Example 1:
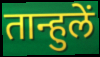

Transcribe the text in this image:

तान्हुलें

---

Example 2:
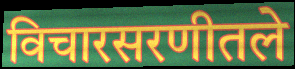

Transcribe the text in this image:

विचारसरणीतले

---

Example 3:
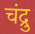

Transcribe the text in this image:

चंद्रु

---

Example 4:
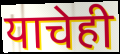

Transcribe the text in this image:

याचेही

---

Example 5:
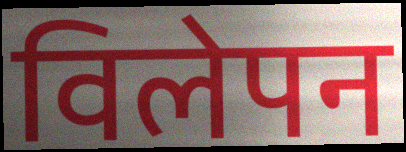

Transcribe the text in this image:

विलेपन